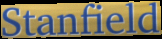
Stanfield